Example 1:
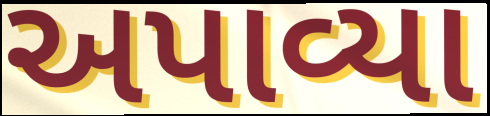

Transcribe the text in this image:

અપાવ્યા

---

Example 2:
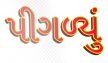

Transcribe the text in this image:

પીગળ્યું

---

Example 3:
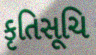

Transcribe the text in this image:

કૃતિસૂચિ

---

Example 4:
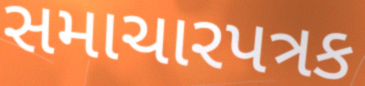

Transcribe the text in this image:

સમાચારપત્રક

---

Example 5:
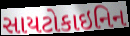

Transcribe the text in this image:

સાયટોકાઇનિન